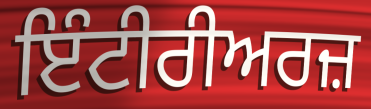
ਇੰਟੀਰੀਅਰਜ਼